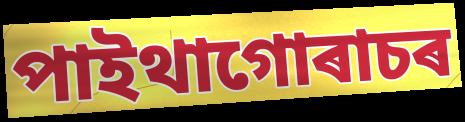
পাইথাগোৰাচৰ